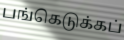
பங்கெடுக்கப்